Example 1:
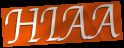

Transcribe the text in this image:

HIAA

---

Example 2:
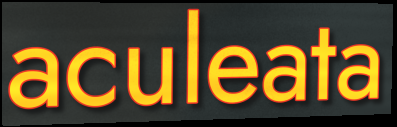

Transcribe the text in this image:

aculeata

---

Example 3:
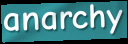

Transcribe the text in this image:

anarchy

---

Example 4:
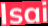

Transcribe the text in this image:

Isai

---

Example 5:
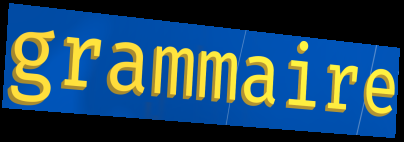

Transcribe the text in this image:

grammaire